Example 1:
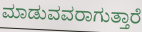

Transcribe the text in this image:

ಮಾಡುವವರಾಗುತ್ತಾರೆ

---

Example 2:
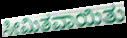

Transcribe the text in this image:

ಸೀಮಿತವಾಯಿತು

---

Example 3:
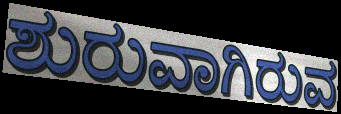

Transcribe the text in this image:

ಶುರುವಾಗಿರುವ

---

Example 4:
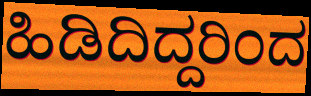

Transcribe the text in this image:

ಹಿಡಿದಿದ್ದರಿಂದ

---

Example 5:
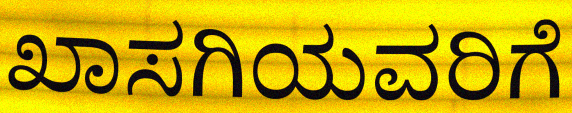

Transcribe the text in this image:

ಖಾಸಗಿಯವರಿಗೆ